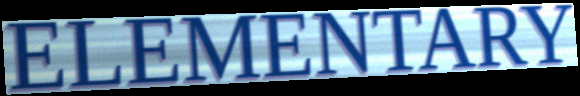
ELEMENTARY